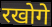
रखोगे